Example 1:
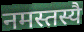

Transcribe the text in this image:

नमस्तस्यै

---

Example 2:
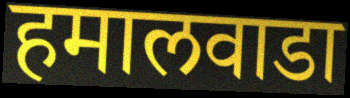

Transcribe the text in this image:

हमालवाडा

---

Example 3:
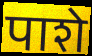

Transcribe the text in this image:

पाशे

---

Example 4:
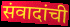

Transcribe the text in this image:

संवादांची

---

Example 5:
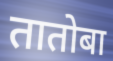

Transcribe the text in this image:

तातोबा